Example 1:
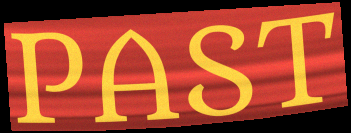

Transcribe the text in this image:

PAST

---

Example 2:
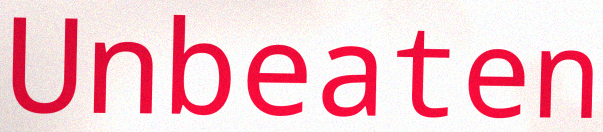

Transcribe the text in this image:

Unbeaten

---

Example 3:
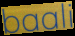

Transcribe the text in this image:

baali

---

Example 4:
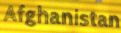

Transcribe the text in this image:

Afghanistan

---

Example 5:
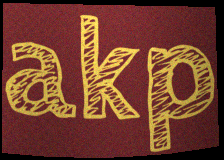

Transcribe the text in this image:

akp